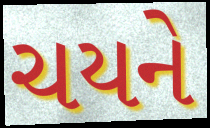
ચયને